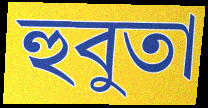
হুবুতা